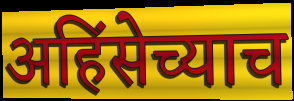
अहिंसेच्याच